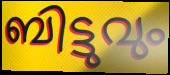
ബിട്ടുവും